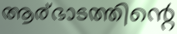
ആര്ഭാടത്തിന്റെ